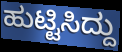
ಹುಟ್ಟಿಸಿದ್ದು